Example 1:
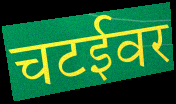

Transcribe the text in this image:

चटईवर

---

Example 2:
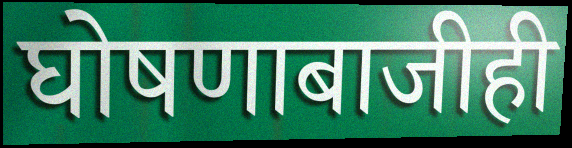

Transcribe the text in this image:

घोषणाबाजीही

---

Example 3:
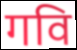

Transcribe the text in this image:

गवि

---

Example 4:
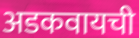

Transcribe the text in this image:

अडकवायची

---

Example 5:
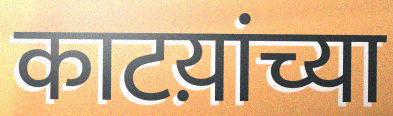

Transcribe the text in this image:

काटय़ांच्या